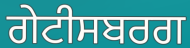
ਗੇਟੀਸਬਰਗ